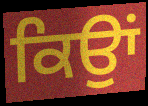
ਕਿਉਾਂ